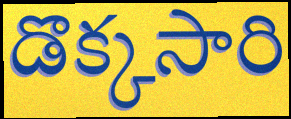
డొక్కసారి